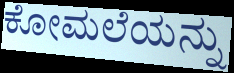
ಕೋಮಲೆಯನ್ನು